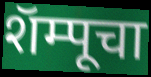
शॅम्पूचा